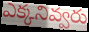
ఎక్కనివ్వరు